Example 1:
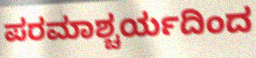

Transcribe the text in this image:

ಪರಮಾಶ್ಚರ್ಯದಿಂದ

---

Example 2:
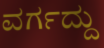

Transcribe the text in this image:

ವರ್ಗದ್ದು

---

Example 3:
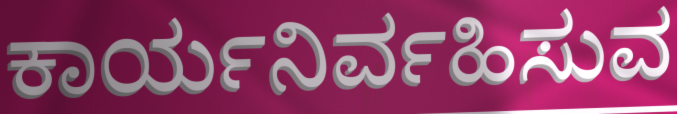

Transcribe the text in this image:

ಕಾರ್ಯನಿರ್ವಹಿಸುವ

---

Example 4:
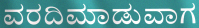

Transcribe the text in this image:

ವರದಿಮಾಡುವಾಗ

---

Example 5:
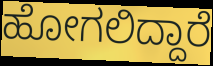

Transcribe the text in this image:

ಹೋಗಲಿದ್ದಾರೆ